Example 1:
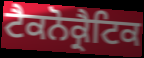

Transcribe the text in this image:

ਟੈਕਨੋਕ੍ਰੈਟਿਕ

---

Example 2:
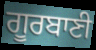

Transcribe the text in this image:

ਗੂਰਬਾਣੀ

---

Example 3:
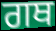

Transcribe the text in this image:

ਗਥ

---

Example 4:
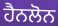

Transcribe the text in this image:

ਹੈਨਲੋਨ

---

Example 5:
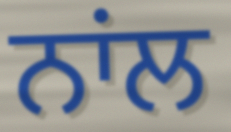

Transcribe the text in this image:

ਨਾਂਲ